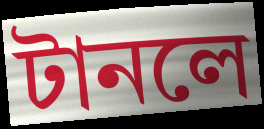
টানলে